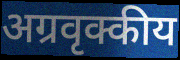
अग्रवृक्कीय